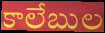
కాలేబుల